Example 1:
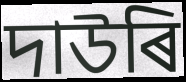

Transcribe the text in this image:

দাউৰি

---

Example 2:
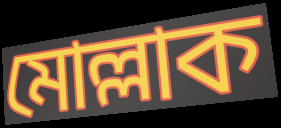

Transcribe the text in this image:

মোল্লাক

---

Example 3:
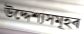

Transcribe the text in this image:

উদ্দেশ্যসমূহৰ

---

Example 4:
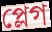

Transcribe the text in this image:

প্লেগ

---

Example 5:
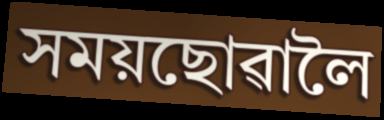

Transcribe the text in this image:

সময়ছোৱালৈ